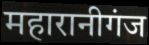
महारानीगंज